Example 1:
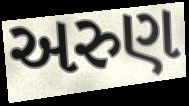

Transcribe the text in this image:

અરુણ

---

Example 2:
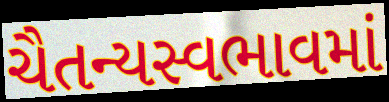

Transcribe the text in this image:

ચૈતન્યસ્વભાવમાં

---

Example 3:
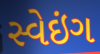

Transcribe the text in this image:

સ્વેઇંગ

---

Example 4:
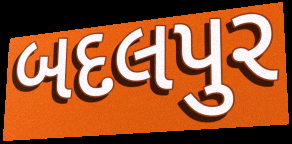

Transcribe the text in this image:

બદલપુર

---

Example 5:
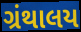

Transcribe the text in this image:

ગ્રંથાલય